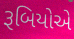
રૂબિયોએ